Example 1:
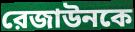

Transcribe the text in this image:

রেজাউনকে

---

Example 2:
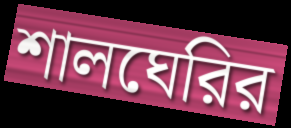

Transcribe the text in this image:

শালঘেরির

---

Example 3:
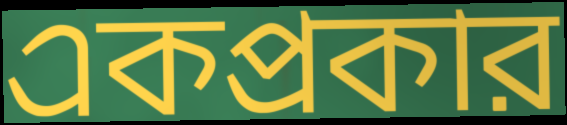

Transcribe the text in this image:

একপ্রকার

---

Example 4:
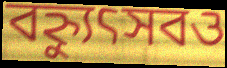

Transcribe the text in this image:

বহ্ন্যুৎসবও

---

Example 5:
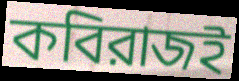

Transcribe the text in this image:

কবিরাজই